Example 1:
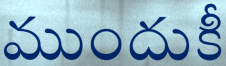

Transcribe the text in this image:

ముందుకీ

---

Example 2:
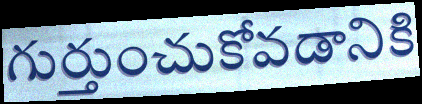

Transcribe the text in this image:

గుర్తుంచుకోవడానికి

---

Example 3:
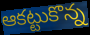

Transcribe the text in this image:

ఆకట్టుకొన్న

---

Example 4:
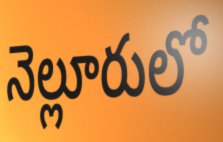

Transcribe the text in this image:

నెల్లూరులో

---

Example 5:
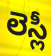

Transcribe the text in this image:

లెస్లీ